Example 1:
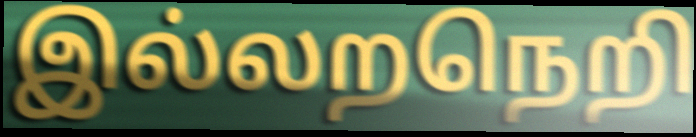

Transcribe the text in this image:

இல்லறநெறி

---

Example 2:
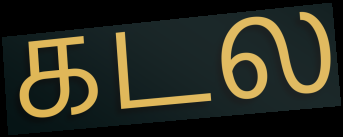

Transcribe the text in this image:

கடல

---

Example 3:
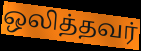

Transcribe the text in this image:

ஒலித்தவர்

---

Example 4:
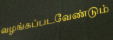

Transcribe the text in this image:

வழங்கப்படவேண்டும்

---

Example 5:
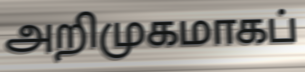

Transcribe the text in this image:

அறிமுகமாகப்